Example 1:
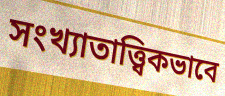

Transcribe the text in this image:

সংখ্যাতাত্ত্বিকভাবে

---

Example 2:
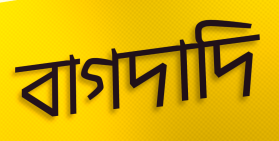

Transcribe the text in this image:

বাগদাদি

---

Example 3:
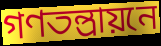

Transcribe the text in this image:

গণতন্ত্রায়নে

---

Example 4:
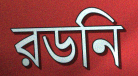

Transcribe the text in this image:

রডনি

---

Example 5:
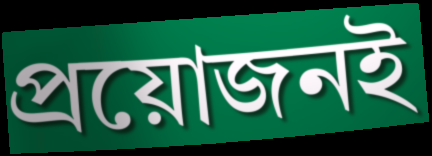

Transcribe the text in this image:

প্রয়োজনই